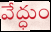
వేద్ధుం